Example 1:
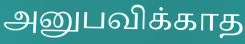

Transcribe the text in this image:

அனுபவிக்காத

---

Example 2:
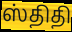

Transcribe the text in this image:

ஸ்திதி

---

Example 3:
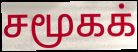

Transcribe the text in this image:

சமூகக்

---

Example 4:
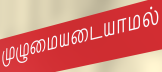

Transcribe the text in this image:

முழுமையடையாமல்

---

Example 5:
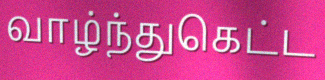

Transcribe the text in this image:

வாழ்ந்துகெட்ட